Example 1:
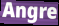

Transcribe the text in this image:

Angre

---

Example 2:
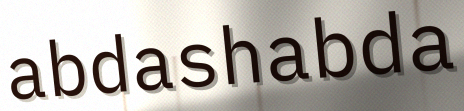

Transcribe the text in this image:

abdashabda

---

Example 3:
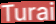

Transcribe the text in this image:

Turai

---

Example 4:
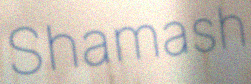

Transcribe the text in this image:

Shamash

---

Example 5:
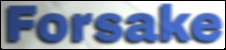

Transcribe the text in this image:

Forsake